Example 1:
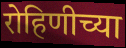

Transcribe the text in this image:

रोहिणीच्या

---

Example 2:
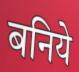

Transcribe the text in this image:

बनिये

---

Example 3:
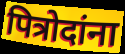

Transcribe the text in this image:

पित्रोदांना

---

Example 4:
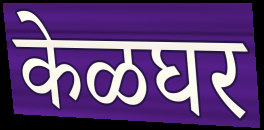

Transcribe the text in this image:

केळघर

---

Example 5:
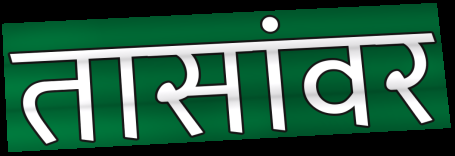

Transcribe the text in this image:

तासांवर